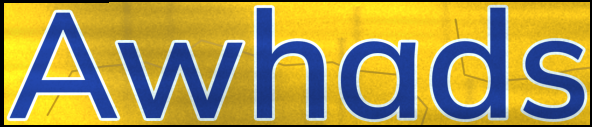
Awhads